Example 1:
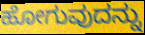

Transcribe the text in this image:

ಹೋಗುವುದನ್ನು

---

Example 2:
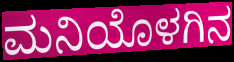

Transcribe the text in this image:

ಮನಿಯೊಳಗಿನ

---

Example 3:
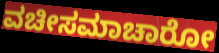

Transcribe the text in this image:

ವಚೀಸಮಾಚಾರೋ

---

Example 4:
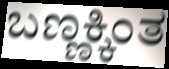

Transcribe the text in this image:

ಬಣ್ಣಕ್ಕಿಂತ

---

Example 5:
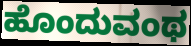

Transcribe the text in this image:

ಹೊಂದುವಂಥ